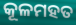
କୂଳମହତ